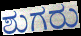
ಶುಗರು